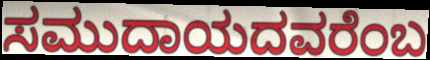
ಸಮುದಾಯದವರೆಂಬ